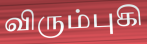
விரும்புகி